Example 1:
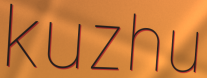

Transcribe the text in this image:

kuzhu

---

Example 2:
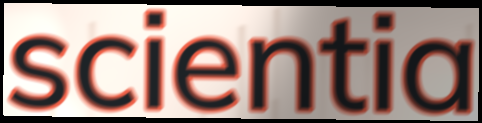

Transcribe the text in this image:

scientia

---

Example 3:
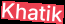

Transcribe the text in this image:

Khatik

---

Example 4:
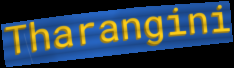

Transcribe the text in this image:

Tharangini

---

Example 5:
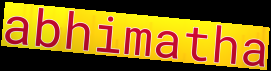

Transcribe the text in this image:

abhimatha